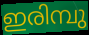
ഇരിമ്പു